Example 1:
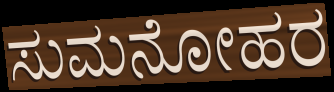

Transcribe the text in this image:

ಸುಮನೋಹರ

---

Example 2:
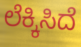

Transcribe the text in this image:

ಲೆಕ್ಕಿಸಿದೆ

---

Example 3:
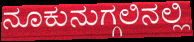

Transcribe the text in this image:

ನೂಕುನುಗ್ಗಲಿನಲ್ಲಿ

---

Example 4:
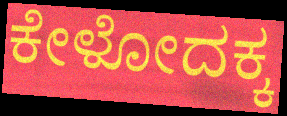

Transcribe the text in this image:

ಕೇಳೋದಕ್ಕ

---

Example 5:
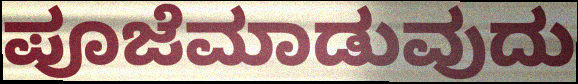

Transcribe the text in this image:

ಪೂಜೆಮಾಡುವುದು